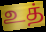
உத்